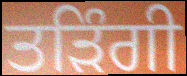
ਤੜਿੰਗੀ